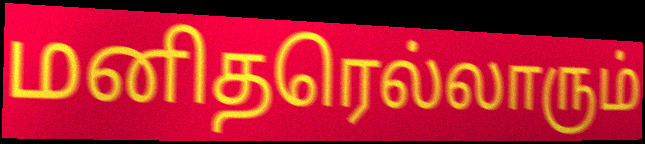
மனிதரெல்லாரும்